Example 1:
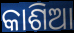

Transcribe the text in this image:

କାଶିଆ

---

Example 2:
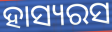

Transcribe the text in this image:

ହାସ୍ୟରସ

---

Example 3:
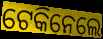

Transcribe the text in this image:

ଟେକିନେଲେ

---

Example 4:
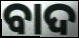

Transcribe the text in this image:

ବାଦ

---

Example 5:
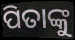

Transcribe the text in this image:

ପିତାଙ୍କୁ